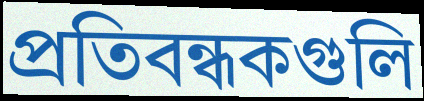
প্রতিবন্ধকগুলি